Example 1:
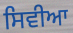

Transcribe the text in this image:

ਸਿਵੀਆ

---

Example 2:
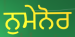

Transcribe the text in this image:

ਨੁਮੇਨੋਰ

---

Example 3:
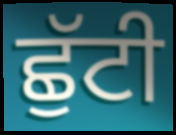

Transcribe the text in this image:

ਛੁੱਟੀ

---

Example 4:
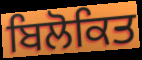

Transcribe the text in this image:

ਬਿਲੋਕਿਤ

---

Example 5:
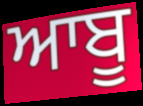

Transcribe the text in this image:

ਆਬੂ